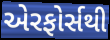
એરફોર્સથી